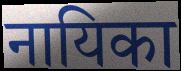
नायिका